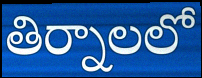
తిర్నాలలో